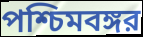
পশ্চিমবঙ্গর